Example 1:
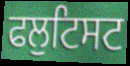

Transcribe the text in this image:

ਫਲੁਟਿਸਟ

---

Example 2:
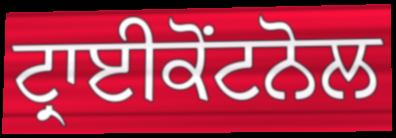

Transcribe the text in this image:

ਟ੍ਰਾਈਕੋਂਟਨੋਲ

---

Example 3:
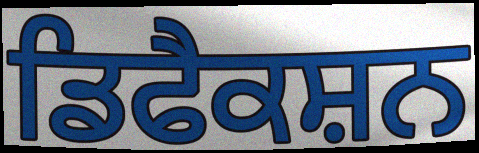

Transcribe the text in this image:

ਡਿਫੈਕਸ਼ਨ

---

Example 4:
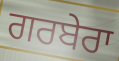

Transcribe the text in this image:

ਗਰਬੇਰਾ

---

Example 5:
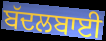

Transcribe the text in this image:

ਬੱਦਲਬਾਈ